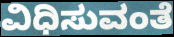
ವಿಧಿಸುವಂತೆ